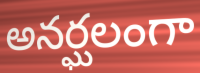
అనర్ఘలంగా